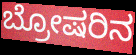
ಬ್ರೋಷರಿನ